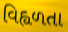
વિહ્વળતા